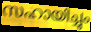
സഹായിച്ചും